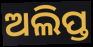
ଅଲିପ୍ତ